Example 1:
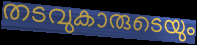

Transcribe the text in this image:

തടവുകാരുടെയും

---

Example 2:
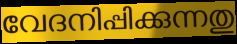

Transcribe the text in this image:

വേദനിപ്പിക്കുന്നതു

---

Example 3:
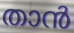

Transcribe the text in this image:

താൻ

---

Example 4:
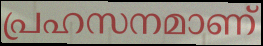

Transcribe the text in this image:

പ്രഹസനമാണ്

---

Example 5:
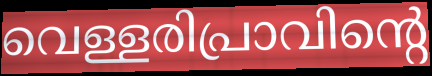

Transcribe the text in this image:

വെള്ളരിപ്രാവിന്റെ